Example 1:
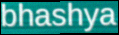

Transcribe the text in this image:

bhashya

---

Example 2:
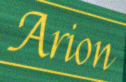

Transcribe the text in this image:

Arion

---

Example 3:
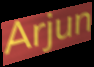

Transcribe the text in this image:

Arjun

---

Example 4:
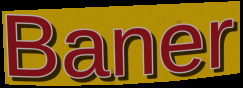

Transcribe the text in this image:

Baner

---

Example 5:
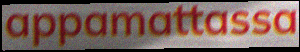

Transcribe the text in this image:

appamattassa